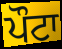
ਪੌਟਾ